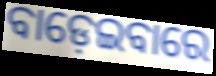
ବାଡ଼େଇବାରେ